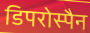
डिपरोस्पैन